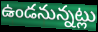
ఉండనున్నట్లు